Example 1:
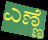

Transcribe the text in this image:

ಎಣ್ಣೆ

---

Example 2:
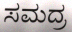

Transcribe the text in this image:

ಸಮದ್ರ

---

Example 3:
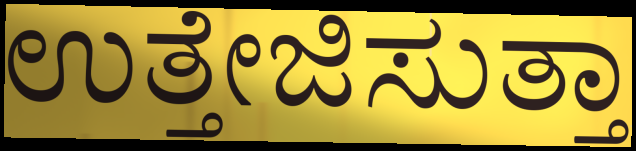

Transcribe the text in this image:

ಉತ್ತೇಜಿಸುತ್ತಾ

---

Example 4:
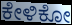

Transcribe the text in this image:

ಕೇಳಿಕೋ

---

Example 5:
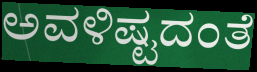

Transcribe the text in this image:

ಅವಳಿಷ್ಟದಂತೆ